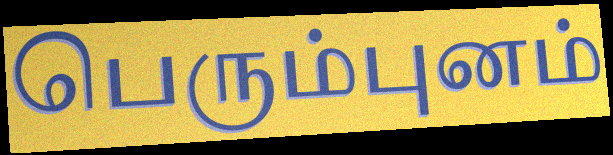
பெரும்புனம்